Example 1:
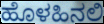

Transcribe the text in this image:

ಹೊಳಹಿನಲಿ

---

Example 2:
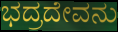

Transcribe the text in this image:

ಭದ್ರದೇವನು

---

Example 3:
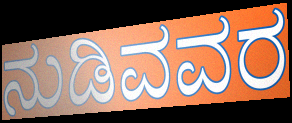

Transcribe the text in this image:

ನುಡಿವವರ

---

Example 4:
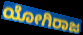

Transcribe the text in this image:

ಯೋಗಿರಾಜ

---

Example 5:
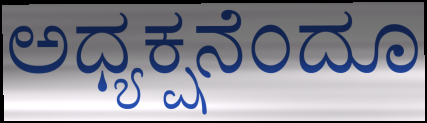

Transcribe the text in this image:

ಅಧ್ಯಕ್ಷನೆಂದೂ